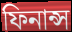
ফিনান্স